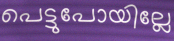
പെട്ടുപോയില്ലേ